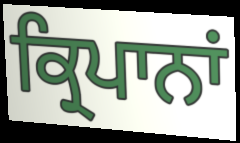
ਕ੍ਰਿਪਾਨਾਂ